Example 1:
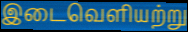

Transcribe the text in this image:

இடைவெளியற்று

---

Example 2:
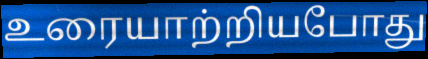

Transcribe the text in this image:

உரையாற்றியபோது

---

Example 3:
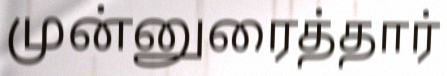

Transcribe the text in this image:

முன்னுரைத்தார்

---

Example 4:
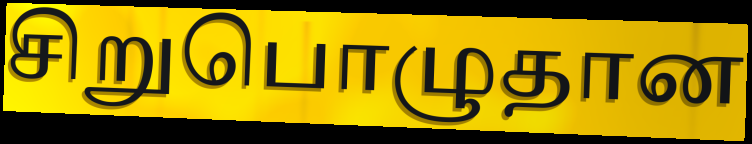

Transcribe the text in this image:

சிறுபொழுதான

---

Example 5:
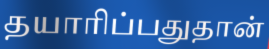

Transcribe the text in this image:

தயாரிப்பதுதான்